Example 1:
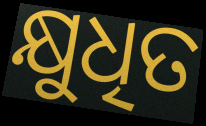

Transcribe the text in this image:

କ୍ଷୁଧିତ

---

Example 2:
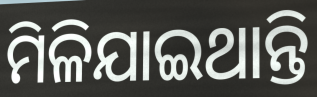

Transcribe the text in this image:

ମିଳିଯାଇଥାନ୍ତି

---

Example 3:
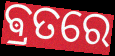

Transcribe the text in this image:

ଵ୍ରତରେ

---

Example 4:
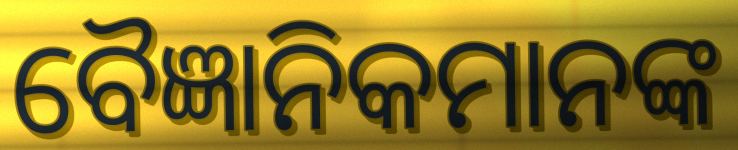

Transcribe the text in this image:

ବୈଜ୍ଞାନିକମାନଙ୍କ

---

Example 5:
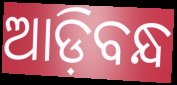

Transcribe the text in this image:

ଆଡ଼ିବନ୍ଧ